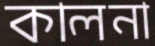
কালনা